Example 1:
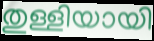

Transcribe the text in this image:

തുള്ളിയായി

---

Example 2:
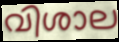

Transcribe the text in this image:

വിശാല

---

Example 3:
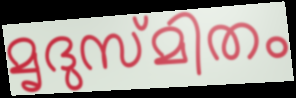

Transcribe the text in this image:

മൃദുസ്മിതം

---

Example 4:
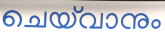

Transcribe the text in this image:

ചെയ്‌വാനും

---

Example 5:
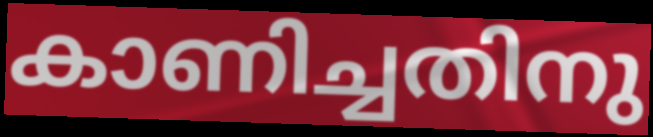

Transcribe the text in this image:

കാണിച്ചതിനു